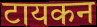
टायकन